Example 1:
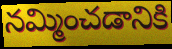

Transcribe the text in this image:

నమ్మించడానికి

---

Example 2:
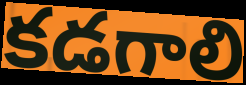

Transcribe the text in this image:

కడగాలి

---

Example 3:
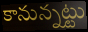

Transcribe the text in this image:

కానున్నట్టు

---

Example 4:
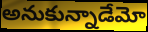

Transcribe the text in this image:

అనుకున్నాడేమో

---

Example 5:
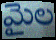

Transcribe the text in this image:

మైల